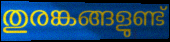
തുരങ്കങ്ങളുണ്ട്